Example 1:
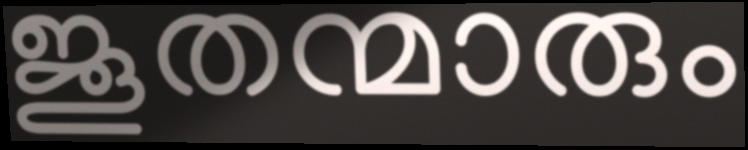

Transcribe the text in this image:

ജൂതന്മാരും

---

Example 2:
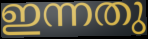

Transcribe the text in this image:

ഇന്നതു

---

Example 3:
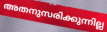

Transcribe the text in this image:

അതനുസരിക്കുന്നില്ല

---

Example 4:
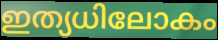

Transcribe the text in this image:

ഇത്യധിലോകം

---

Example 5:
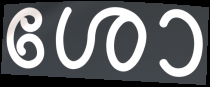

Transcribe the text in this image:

ശോ